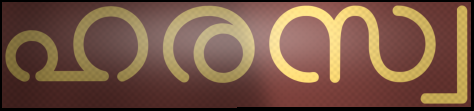
ഹരസ്വ